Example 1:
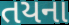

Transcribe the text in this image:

તયના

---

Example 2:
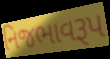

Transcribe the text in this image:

નિજભાવરૂપ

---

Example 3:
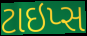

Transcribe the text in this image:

ટાઇપ્સ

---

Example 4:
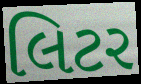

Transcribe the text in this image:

લિટર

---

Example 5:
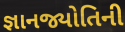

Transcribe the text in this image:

જ્ઞાનજ્યોતિની